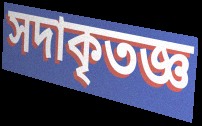
সদাকৃতজ্ঞ